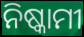
ନିଷ୍କାମୀ